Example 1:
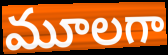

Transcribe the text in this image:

మూలగా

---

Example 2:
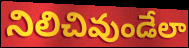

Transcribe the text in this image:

నిలిచివుండేలా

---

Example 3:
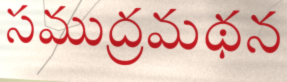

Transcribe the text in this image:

సముద్రమథన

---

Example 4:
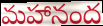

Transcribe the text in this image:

మహానంద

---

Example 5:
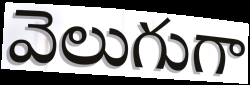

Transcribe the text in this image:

వెలుగుగా